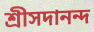
শ্রীসদানন্দ